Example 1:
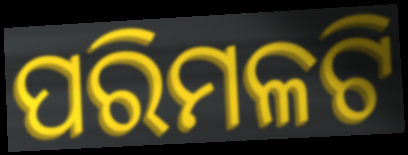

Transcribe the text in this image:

ପରିମଳଟି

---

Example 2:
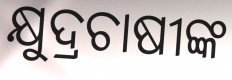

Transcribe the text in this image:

କ୍ଷୁଦ୍ରଚାଷୀଙ୍କ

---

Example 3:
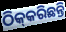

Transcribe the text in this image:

ଠିକ୍‌କରିଛନ୍ତି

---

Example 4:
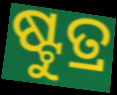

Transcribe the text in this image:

ଷ୍ଟୁତ୍ର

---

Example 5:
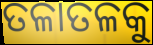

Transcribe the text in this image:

ତଳାତଳକୁ